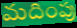
మదింపు